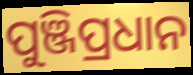
ପୁଞ୍ଜିପ୍ରଧାନ